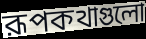
রূপকথাগুলো